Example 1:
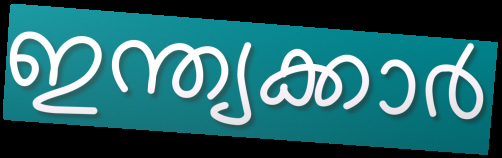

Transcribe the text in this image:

ഇന്ത്യക്കാർ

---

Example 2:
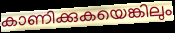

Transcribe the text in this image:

കാണിക്കുകയെങ്കിലും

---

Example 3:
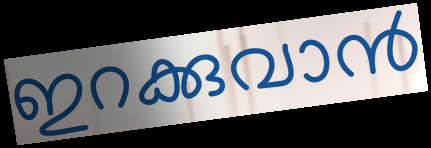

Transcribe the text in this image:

ഇറക്കുവാൻ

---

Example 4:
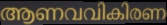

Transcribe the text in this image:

ആണവവികിരണ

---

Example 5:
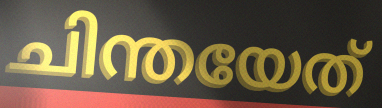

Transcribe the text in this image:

ചിന്തയേത്